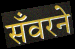
सँवरने